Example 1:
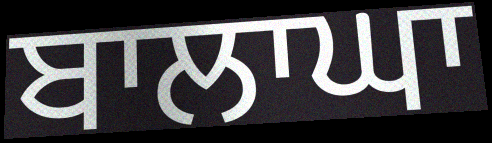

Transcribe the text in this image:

ਬਾਲਾਘਾ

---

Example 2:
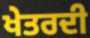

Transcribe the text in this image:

ਖੇਤਰਦੀ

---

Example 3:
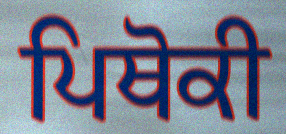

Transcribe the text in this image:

ਪਿਥੋਕੀ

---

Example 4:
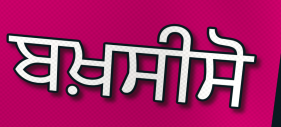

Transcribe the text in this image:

ਬਖ਼ਸੀਸੋ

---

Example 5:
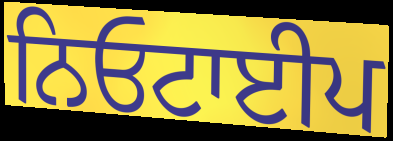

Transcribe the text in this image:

ਨਿਓਟਾਈਪ